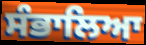
ਸੰਭਾਲਿਆ